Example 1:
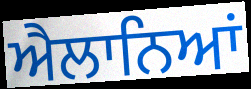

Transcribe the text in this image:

ਐਲਾਨਿਆਂ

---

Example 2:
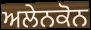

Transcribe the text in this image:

ਅਲੇਨਕੋਨ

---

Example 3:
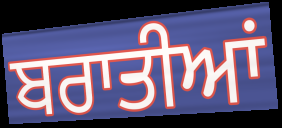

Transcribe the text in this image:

ਬਰਾਤੀਆਂ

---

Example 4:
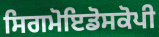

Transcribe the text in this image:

ਸਿਗਮੋਇਡੋਸਕੋਪੀ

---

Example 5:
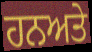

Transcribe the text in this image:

ਹਨਅਤੇ